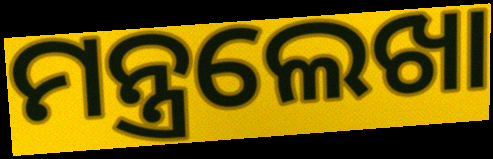
ମନ୍ତ୍ରଲେଖା